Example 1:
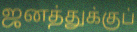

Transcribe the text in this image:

ஜனத்துக்குப்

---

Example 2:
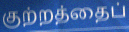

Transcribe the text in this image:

குற்றத்தைப்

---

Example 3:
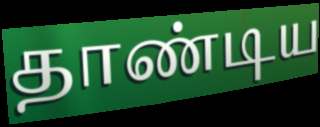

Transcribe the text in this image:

தாண்டிய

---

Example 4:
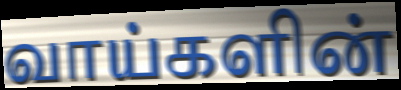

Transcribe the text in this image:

வாய்களின்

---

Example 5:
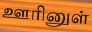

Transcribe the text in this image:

ஊரினுள்